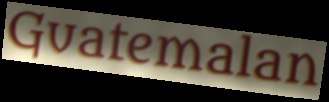
Guatemalan